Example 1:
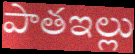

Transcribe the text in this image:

పాతఇల్లు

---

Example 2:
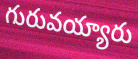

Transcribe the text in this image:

గురువయ్యారు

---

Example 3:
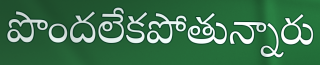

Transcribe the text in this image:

పొందలేకపోతున్నారు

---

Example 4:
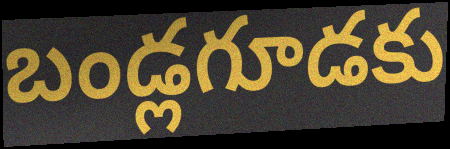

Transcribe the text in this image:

బండ్లగూడకు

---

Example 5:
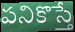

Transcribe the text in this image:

పనికొస్తే